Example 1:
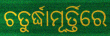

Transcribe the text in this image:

ଚତୁର୍ଦ୍ଧାମୂର୍ତ୍ତିରେ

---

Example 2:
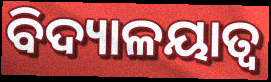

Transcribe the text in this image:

ବିଦ୍ୟାଳୟାତ୍ବ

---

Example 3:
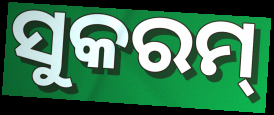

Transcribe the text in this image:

ସୁକରମ୍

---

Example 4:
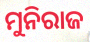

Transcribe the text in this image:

ମୁନିରାଜ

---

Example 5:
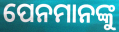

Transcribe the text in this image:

ପେନମାନଙ୍କୁ